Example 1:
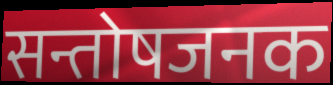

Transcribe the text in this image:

सन्तोषजनक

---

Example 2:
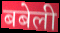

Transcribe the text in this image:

बबेली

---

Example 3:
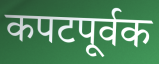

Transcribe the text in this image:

कपटपूर्वक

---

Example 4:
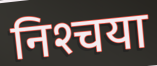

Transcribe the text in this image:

निश्चया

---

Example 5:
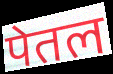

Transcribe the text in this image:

पेतल